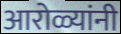
आरोळ्यांनी